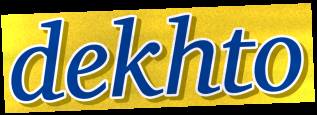
dekhto